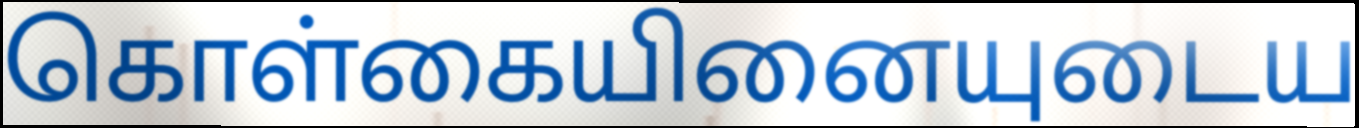
கொள்கையினையுடைய